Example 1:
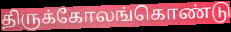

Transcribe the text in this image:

திருக்கோலங்கொண்டு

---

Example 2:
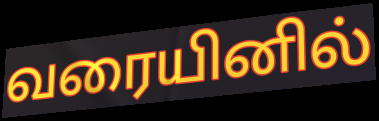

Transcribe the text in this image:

வரையினில்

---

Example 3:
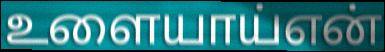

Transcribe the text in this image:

உளையாய்என்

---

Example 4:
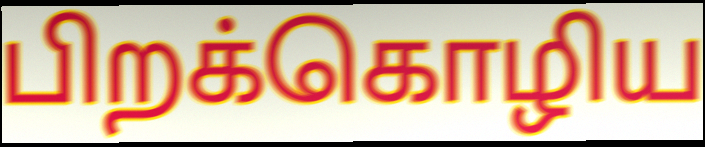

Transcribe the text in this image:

பிறக்கொழிய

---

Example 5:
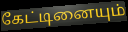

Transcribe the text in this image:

கேட்டினையும்